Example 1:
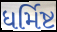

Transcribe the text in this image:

ધર્મિષ્ટ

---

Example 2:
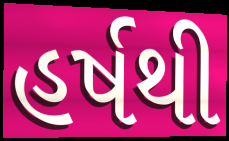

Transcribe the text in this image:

હર્ષથી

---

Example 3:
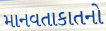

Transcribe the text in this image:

માનવતાકાતનો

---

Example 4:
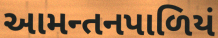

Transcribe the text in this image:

આમન્તનપાળિયં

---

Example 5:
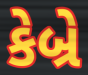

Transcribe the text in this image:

કેબ્રે